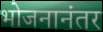
भोजनानंतर